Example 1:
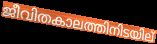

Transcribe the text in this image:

ജീവിതകാലത്തിനിടയില്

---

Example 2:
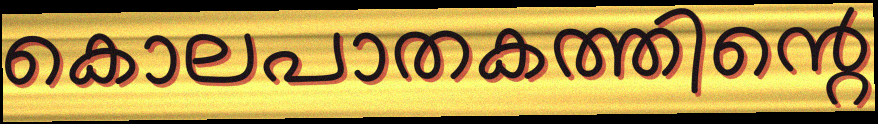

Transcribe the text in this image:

കൊലപാതകത്തിന്റെ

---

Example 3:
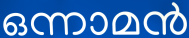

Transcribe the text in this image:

ഒന്നാമൻ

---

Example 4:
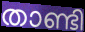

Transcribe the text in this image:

താണ്ടി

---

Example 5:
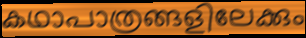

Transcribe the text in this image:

കഥാപാത്രങ്ങളിലേക്കും